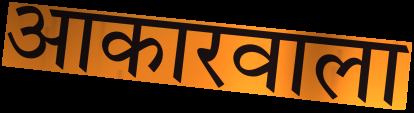
आकारवाला